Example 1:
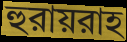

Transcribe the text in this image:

হুরায়রাহ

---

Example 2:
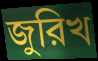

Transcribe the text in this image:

জুরিখ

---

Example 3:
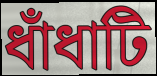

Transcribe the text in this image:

ধাঁধাটি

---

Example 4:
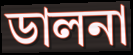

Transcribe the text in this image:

ডালনা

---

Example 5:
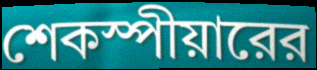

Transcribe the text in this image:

শেকস্পীয়ারের